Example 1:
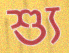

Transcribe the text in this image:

শ্যু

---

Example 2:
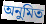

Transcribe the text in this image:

অনুমিত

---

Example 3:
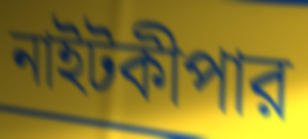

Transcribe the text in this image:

নাইটকীপার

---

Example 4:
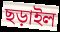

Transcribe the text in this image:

ছড়াইল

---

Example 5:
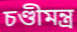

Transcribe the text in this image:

চণ্ডীমন্ত্র